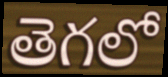
తెగలో